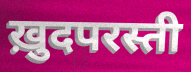
ख़ुदपरस्ती